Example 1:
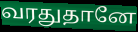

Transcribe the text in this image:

வரதுதானே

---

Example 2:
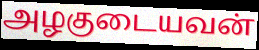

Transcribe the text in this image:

அழகுடையவன்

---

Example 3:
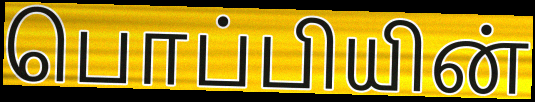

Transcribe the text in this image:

பொப்பியின்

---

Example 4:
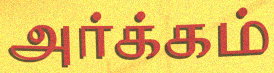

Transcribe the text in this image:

அர்க்கம்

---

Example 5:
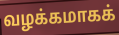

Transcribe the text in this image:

வழக்கமாகக்